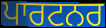
ਪਾਰਟਨਰ